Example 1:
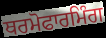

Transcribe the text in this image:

ਥਰਮੋਫਾਰਮਿੰਗ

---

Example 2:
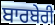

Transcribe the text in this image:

ਬਾਰਬੇਰੀ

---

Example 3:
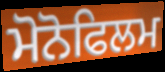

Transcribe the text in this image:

ਮੋਨੋਫਿਲਮ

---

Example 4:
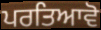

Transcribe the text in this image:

ਪਰਤਿਆਵੋ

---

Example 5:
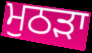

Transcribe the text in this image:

ਮੁਠੜਾ